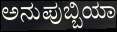
ಅನುಪುಬ್ಬಿಯಾ